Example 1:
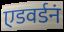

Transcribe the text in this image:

एडवर्डनं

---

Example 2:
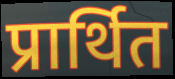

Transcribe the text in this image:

प्रार्थित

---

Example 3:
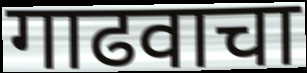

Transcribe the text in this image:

गाढवाचा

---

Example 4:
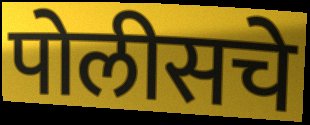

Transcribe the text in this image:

पोलीसचे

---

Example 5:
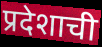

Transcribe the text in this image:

प्रदेशाची